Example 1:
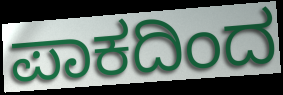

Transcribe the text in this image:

ಪಾಕದಿಂದ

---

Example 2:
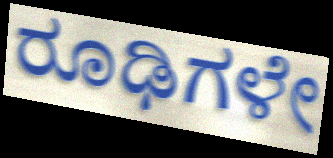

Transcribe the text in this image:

ರೂಢಿಗಳೇ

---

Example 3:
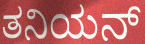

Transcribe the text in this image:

ತನಿಯನ್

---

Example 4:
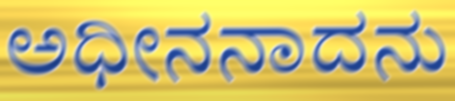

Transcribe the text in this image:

ಅಧೀನನಾದನು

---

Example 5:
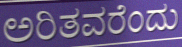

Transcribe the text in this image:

ಅರಿತವರೆಂದು